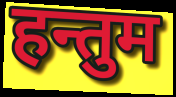
हन्तुम